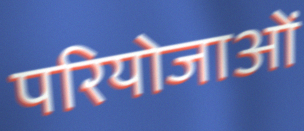
परियोजाओं